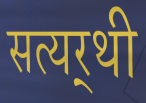
सत्यर्थी